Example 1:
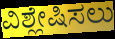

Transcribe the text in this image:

ವಿಶ್ಲೇಷಿಸಲು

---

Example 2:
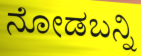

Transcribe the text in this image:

ನೋಡಬನ್ನಿ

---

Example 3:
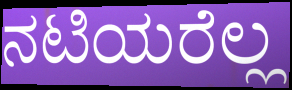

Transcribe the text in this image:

ನಟಿಯರೆಲ್ಲ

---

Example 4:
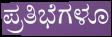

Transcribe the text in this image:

ಪ್ರತಿಭೆಗಳೂ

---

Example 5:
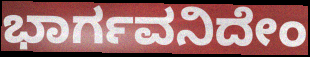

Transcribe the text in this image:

ಭಾರ್ಗವನಿದೇಂ